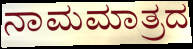
ನಾಮಮಾತ್ರದ